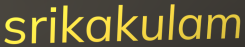
srikakulam